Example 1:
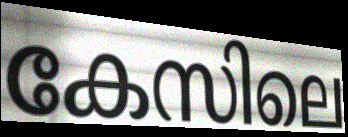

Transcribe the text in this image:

കേസിലെ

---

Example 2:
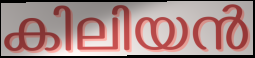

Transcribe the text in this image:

കിലിയൻ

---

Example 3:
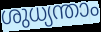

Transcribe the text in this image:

ശുധ്യന്താം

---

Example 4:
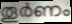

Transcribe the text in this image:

തൂർണം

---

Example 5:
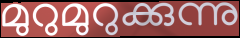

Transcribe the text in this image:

മുറുമുറുക്കുന്നു